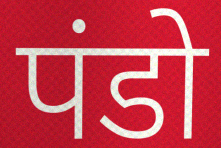
पंडो